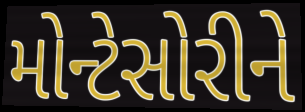
મોન્ટેસોરીને